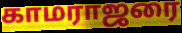
காமராஜரை